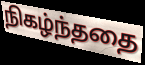
நிகழ்ந்ததை